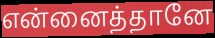
என்னைத்தானே